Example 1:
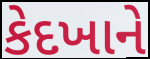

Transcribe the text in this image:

કેદખાને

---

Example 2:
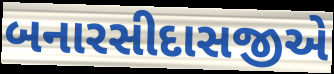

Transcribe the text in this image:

બનારસીદાસજીએ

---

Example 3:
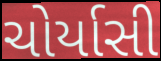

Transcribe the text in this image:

ચોર્યાસી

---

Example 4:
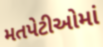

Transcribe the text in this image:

મતપેટીઓમાં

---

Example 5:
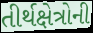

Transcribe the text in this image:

તીર્થક્ષેત્રોની